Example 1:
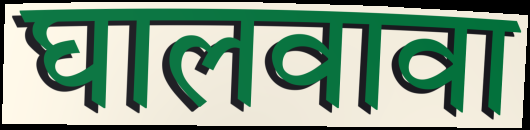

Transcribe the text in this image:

घालवावा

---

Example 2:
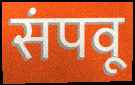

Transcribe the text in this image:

संपवू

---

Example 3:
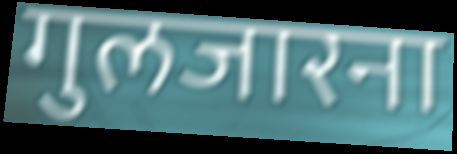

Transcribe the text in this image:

गुलजारना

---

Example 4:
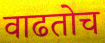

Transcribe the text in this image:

वाढतोच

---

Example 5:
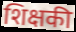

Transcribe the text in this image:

शिक्षकी